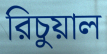
রিচুয়াল